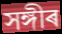
সঙ্গীৰ